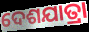
ଦେଶଯାତ୍ରା